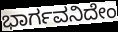
ಭಾರ್ಗವನಿದೇಂ